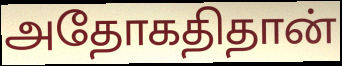
அதோகதிதான்